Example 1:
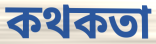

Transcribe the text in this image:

কথকতা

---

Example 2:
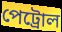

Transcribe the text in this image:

পেট্ৰোল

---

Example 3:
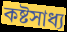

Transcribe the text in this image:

কষ্টসাধ্য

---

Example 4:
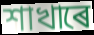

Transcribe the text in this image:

শাখাৰে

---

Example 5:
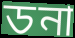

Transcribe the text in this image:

ডনা